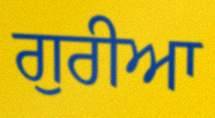
ਗੁਰੀਆ